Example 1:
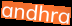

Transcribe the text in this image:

andhra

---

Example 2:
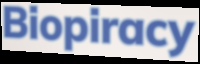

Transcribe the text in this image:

Biopiracy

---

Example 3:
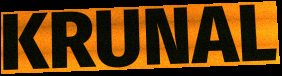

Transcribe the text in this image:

KRUNAL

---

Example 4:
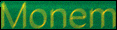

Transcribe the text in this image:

Monem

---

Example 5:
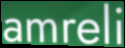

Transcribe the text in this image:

amreli